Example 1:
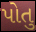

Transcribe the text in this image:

પોતુ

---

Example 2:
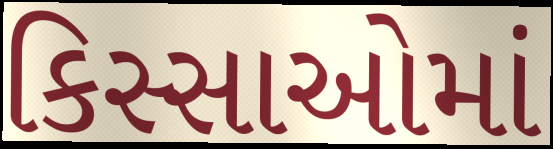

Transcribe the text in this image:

કિસ્સાઓમાં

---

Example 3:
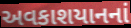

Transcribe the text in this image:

અવકાશયાનનાં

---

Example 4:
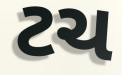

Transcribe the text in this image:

ટચ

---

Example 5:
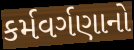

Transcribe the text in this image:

કર્મવર્ગણાનો